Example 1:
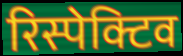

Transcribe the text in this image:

रिस्पेक्टिव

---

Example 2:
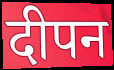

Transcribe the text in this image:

दीपन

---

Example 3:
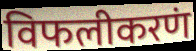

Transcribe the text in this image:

विफलीकरणं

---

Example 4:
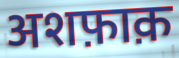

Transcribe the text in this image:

अशफ़ाक़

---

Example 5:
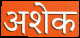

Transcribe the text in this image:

अशेक